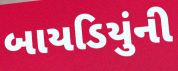
બાયડિયુંની